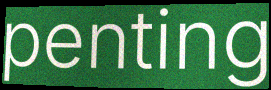
penting